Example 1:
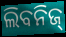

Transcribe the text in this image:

ଲିବନିଜ୍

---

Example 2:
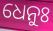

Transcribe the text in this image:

ଧେନୁଃ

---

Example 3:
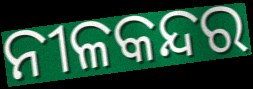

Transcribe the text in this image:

ନୀଳକନ୍ଦର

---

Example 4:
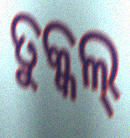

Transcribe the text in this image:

ତୁକ୍କଲ୍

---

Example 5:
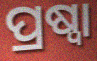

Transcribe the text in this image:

ପ୍ରଷ୍ୱା